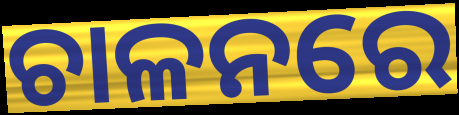
ଚାଳନରେ